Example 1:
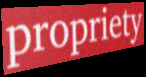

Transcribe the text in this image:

propriety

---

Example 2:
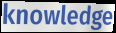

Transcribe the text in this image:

knowledge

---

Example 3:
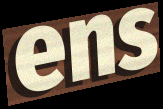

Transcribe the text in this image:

ens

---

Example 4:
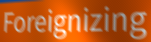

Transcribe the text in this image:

Foreignizing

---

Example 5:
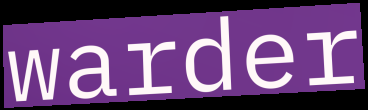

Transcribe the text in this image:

warder